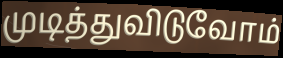
முடித்துவிடுவோம்